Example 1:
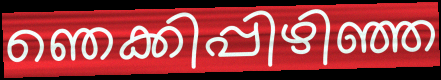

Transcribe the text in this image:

ഞെക്കിപ്പിഴിഞ്ഞ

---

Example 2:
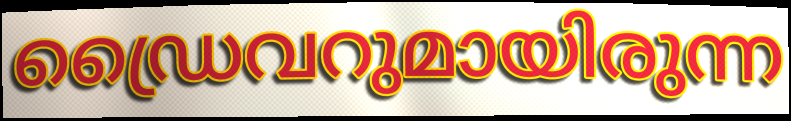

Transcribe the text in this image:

ഡ്രൈവറുമായിരുന്ന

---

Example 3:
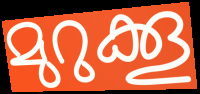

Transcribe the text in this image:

മുറുക്കൂ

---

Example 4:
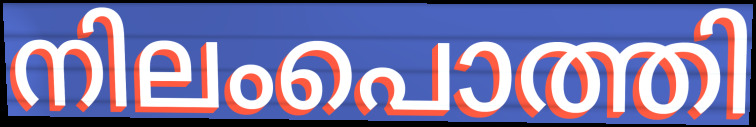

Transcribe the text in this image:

നിലംപൊത്തി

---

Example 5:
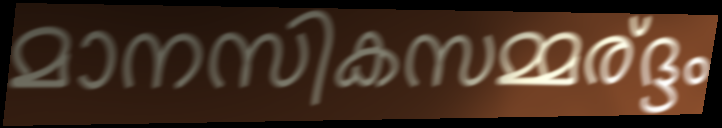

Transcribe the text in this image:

മാനസികസമ്മര്ദ്ദം